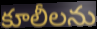
కూలీలను